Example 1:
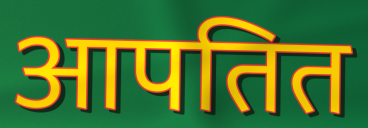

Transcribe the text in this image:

आपतित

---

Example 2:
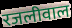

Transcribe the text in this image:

रजलीवाल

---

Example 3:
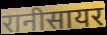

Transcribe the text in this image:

रानीसायर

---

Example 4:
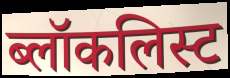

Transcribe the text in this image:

ब्लॉकलिस्ट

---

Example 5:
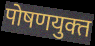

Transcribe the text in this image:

पोषणयुक्‍त